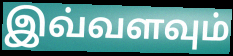
இவ்வளவும்